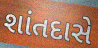
શાંતદાસે